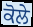
ਕੋਲੇ